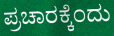
ಪ್ರಚಾರಕ್ಕೆಂದು